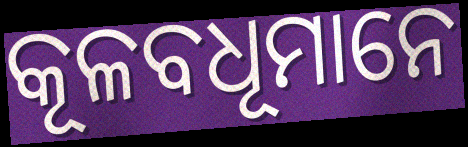
କୂଳବଧୂମାନେ